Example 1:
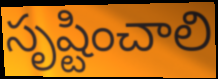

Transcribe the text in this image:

సృష్టించాలి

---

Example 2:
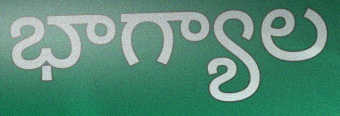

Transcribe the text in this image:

భాగ్యాల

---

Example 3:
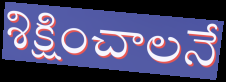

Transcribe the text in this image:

శిక్షించాలనే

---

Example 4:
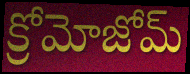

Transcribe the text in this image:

క్రోమోజోమ్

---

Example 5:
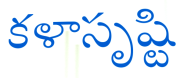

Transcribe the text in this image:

కళాసృష్టి